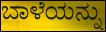
ಬಾಳೆಯನ್ನು